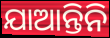
ଯାଆନ୍ତିନି